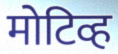
मोटिव्ह